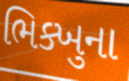
ભિક્ખુના